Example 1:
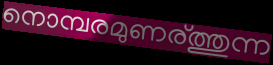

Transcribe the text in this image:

നൊമ്പരമുണര്ത്തുന്ന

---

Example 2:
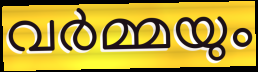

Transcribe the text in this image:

വർമ്മയും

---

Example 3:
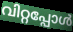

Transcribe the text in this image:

വിറ്റപ്പോൾ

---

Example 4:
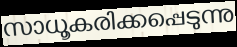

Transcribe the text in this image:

സാധൂകരിക്കപ്പെടുന്നു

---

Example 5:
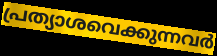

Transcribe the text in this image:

പ്രത്യാശവെക്കുന്നവർ